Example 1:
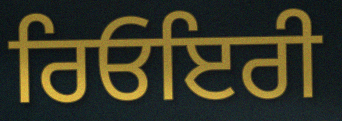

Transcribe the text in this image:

ਰਿਓਇਰੀ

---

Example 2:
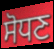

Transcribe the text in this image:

ਸੋਧਣ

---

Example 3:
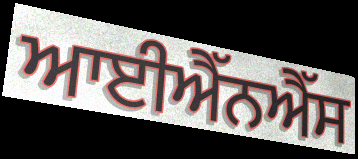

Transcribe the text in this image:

ਆਈਐੱਨਐੱਸ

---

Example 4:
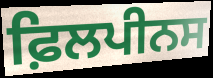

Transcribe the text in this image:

ਫ਼ਿਲਪੀਨਸ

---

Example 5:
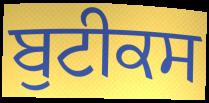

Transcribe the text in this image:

ਬੁਟੀਕਸ